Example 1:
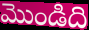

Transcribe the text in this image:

మొండిది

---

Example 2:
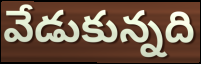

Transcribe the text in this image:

వేడుకున్నది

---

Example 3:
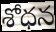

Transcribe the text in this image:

శోధన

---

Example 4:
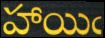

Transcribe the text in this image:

హాయిఁ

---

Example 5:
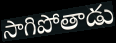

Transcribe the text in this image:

సాగిపోతాడు